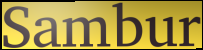
Sambur